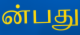
ன்பது